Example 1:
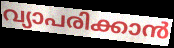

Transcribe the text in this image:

വ്യാപരിക്കാൻ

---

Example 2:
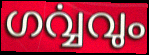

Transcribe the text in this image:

ഗൎവ്വവും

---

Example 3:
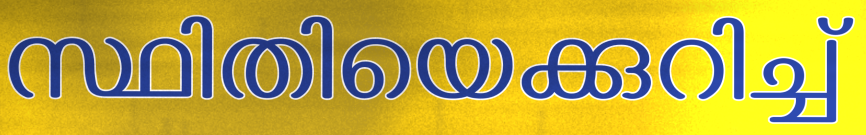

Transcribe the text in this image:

സ്ഥിതിയെക്കുറിച്ച്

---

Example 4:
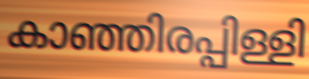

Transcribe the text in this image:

കാഞ്ഞിരപ്പിള്ളി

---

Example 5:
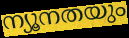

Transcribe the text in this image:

ന്യൂനതയും